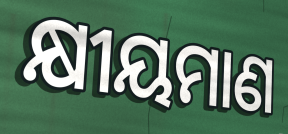
କ୍ଷୀୟମାଣ